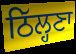
ਠਿੱਲ੍ਹਣਾ